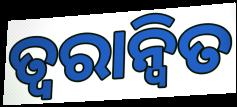
ତ୍ବରାନ୍ବିତ